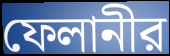
ফেলানীর